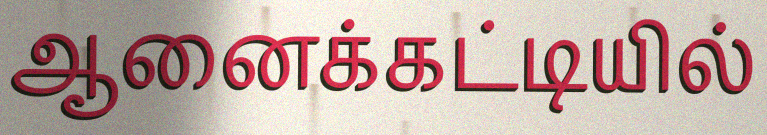
ஆனைக்கட்டியில்